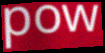
pow